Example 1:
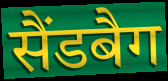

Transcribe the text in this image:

सैंडबैग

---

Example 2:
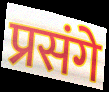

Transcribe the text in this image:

प्रसंगे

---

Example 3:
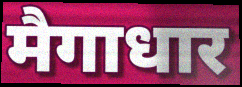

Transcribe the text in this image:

मैगाधार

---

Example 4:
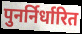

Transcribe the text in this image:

पुनर्निर्धारित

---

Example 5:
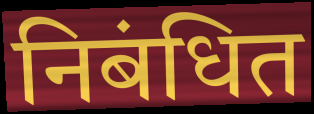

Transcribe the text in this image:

निबंधित